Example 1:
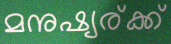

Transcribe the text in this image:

മനുഷ്യര്ക്ക്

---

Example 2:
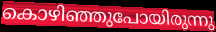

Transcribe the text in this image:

കൊഴിഞ്ഞുപോയിരുന്നു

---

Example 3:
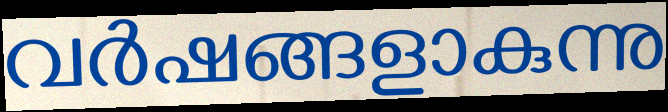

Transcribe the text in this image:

വർഷങ്ങളാകുന്നു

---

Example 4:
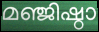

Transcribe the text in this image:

മഞ്ജിഷ്ഠാ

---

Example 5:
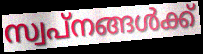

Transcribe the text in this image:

സ്വപ്നങ്ങൾക്ക്